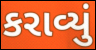
કરાવ્યું